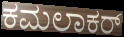
ಕಮಲಾಕರ್